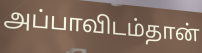
அப்பாவிடம்தான்